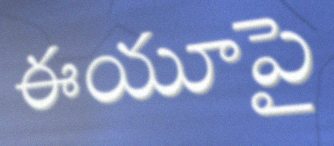
ఈయూపై